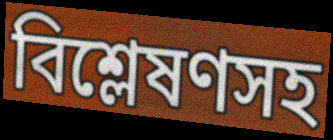
বিশ্লেষণসহ